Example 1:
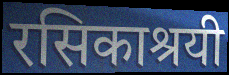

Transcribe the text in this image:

रसिकाश्रयी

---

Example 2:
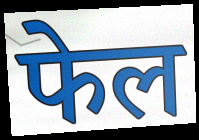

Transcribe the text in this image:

फेल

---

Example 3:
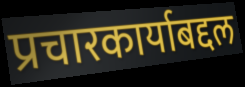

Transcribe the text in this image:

प्रचारकार्याबद्दल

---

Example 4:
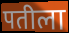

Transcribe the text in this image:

पतीला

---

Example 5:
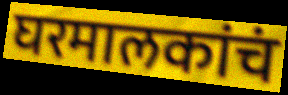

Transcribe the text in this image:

घरमालकांचं